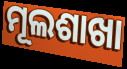
ମୂଲଶାଖା